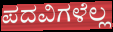
ಪದವಿಗಳೆಲ್ಲ